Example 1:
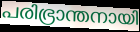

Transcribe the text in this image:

പരിഭ്രാന്തനായി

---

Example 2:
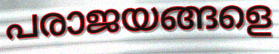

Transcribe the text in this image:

പരാജയങ്ങളെ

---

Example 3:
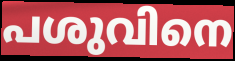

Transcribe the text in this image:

പശുവിനെ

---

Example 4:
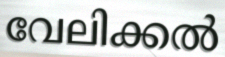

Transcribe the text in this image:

വേലിക്കൽ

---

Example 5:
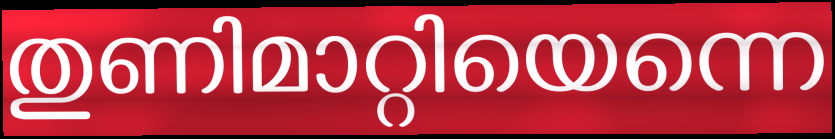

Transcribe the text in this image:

തുണിമാറ്റിയെന്നെ